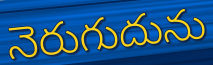
నెరుగుదును